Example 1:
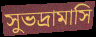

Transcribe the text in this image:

সুভদ্রামাসি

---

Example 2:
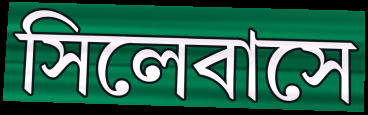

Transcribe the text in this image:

সিলেবাসে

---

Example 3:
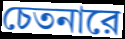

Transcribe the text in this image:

চেতনারে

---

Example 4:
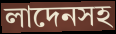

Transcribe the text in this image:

লাদেনসহ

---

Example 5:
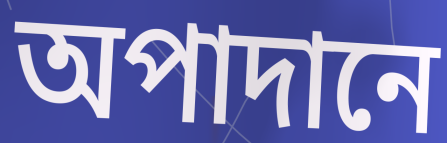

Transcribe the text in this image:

অপাদানে